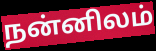
நன்னிலம்